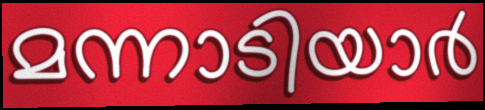
മന്നാടിയാർ